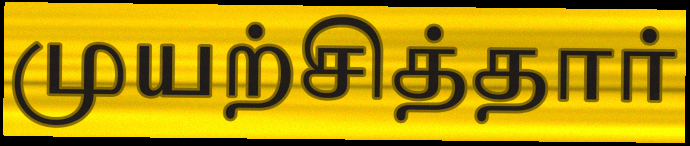
முயற்சித்தார்